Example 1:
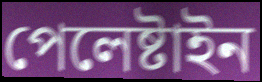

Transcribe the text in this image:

পেলেষ্টাইন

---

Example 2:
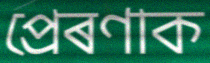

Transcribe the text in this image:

প্ৰেৰণাক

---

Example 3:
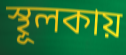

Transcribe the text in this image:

স্থূলকায়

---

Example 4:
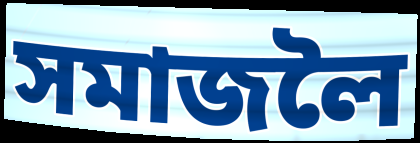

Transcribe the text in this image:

সমাজলৈ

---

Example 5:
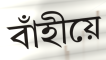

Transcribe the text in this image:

বাঁহীয়ে